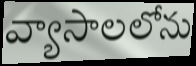
వ్యాసాలలోను